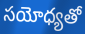
సయోధ్యతో